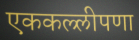
एककल्लीपणा